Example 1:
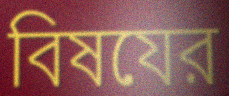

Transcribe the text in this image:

বিষযের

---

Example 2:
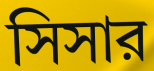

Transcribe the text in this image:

সিসার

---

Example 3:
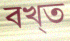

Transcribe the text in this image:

বখ্ত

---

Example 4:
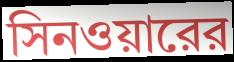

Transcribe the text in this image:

সিনওয়ারের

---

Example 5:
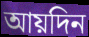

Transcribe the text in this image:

আয়দিন